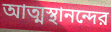
আত্মস্থানন্দের